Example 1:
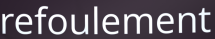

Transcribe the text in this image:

refoulement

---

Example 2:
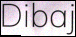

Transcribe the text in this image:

Dibaj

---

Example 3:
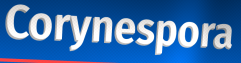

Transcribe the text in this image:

Corynespora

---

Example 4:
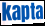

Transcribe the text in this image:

kapta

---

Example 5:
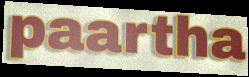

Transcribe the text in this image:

paartha